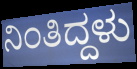
ನಿಂತಿದ್ದಳು